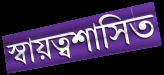
স্বায়ত্বশাসিত